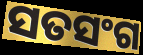
ସତସଂଗ